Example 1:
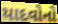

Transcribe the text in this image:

યાદવોનો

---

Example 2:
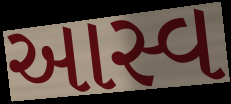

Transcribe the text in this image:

આસ્વ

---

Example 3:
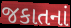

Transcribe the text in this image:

જકાતનાં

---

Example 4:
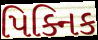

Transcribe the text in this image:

પિક્નિક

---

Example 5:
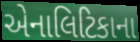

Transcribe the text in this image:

એનાલિટિકાના